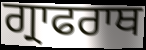
ਗ੍ਰਾਫਰਾਥ